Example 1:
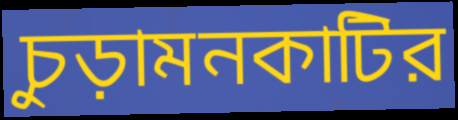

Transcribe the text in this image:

চুড়ামনকাটির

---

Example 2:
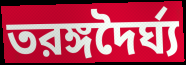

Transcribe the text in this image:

তরঙ্গদৈর্ঘ্য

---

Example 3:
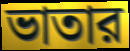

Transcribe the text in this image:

ভাতার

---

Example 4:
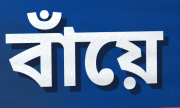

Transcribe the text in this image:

বাঁয়ে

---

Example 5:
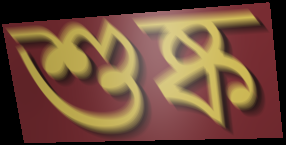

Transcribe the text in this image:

শুষ্ক